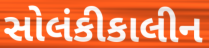
સોલંકીકાલીન